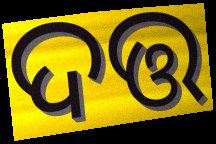
ଦତ୍ତ